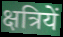
क्षत्रियें